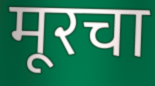
मूरचा